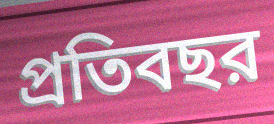
প্রতিবছর